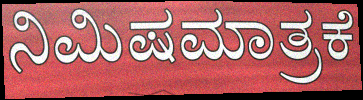
ನಿಮಿಷಮಾತ್ರಕೆ